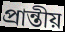
প্রান্তীয়